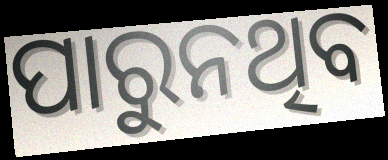
ପାରୁନଥିବ